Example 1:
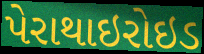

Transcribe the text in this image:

પેરાથાઇરોઇડ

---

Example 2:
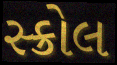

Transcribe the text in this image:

સ્ક્રોલ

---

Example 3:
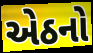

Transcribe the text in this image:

એઠનો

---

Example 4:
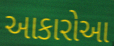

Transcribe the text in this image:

આકારોઆ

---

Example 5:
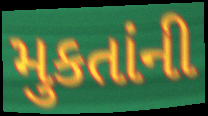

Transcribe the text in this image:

મુકતાંની